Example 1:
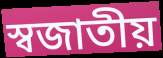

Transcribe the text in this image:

স্বজাতীয়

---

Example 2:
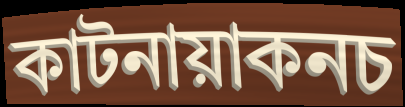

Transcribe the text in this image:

কাটনায়াকনচ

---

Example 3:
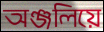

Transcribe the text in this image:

অঞ্জলিয়ে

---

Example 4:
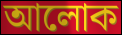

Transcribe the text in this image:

আলোক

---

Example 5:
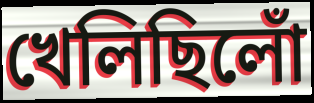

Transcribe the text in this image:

খেলিছিলোঁ